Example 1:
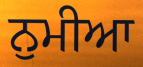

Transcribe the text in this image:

ਨੁਮੀਆ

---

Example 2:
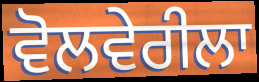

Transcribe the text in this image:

ਵੋਲਵੇਰੀਲਾ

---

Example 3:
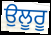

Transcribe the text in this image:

ਉਲੂਰੂ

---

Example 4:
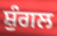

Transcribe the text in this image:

ਸ਼ੁੰਗਲ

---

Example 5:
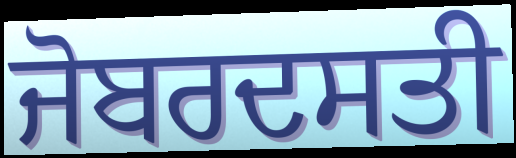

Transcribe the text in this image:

ਜੋਬਰਦਸਤੀ